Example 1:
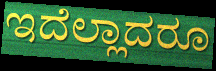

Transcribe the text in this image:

ಇದೆಲ್ಲಾದರೂ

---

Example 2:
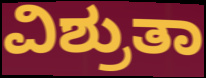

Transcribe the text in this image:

ವಿಶ್ರುತಾ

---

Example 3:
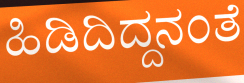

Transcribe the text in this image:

ಹಿಡಿದಿದ್ದನಂತೆ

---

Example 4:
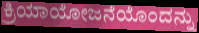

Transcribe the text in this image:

ಕ್ರಿಯಾಯೋಜನೆಯೊಂದನ್ನು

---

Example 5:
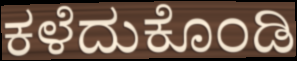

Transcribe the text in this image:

ಕಳೆದುಕೊಂಡಿ